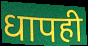
धापही